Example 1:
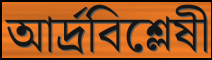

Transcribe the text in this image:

আর্দ্রবিশ্লেষী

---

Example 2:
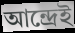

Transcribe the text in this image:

আন্দ্রেই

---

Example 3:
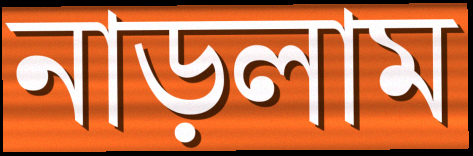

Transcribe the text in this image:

নাড়লাম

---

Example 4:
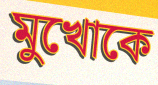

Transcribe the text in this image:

মুখোকে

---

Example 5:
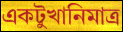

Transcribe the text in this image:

একটুখানিমাত্র